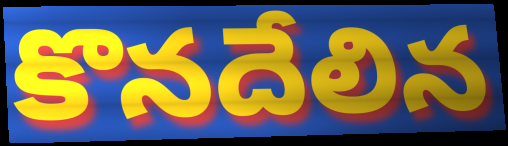
కొనదేలిన